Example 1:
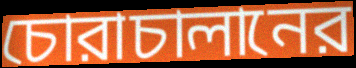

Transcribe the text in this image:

চোরাচালানের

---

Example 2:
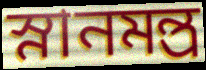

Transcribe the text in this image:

স্নানমন্ত্র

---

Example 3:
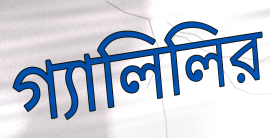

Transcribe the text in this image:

গ্যালিলির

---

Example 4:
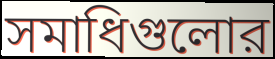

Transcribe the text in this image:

সমাধিগুলোর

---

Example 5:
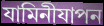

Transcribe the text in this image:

যামিনীযাপন